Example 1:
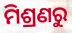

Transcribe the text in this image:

ମିଶ୍ରଣରୁ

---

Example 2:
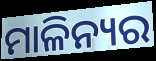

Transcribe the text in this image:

ମାଳିନ୍ୟର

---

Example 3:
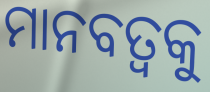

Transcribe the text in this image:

ମାନବତ୍ବକୁ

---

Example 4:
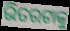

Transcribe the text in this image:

ଭିତରଟାକୁ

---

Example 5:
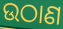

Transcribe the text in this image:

ଉଠାଣ